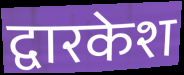
द्वारकेश